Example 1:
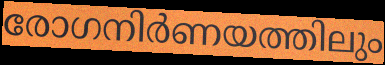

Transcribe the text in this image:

രോഗനിർണയത്തിലും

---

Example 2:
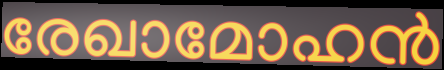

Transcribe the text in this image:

രേഖാമോഹൻ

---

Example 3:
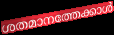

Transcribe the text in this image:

ശതമാനത്തേക്കാൾ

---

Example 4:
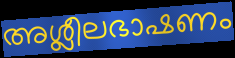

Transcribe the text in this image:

അശ്ലീലഭാഷണം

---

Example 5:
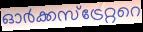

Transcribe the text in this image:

ഓർക്കസ്ട്രേറ്ററെ